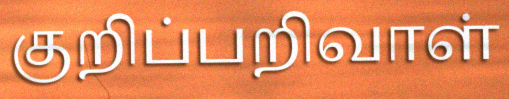
குறிப்பறிவாள்